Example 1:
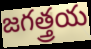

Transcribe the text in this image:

జగత్త్రయ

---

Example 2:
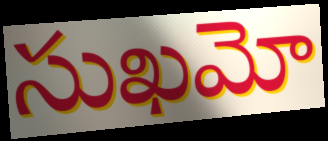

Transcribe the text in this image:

సుఖమో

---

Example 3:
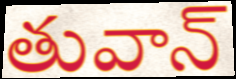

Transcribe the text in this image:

తువాన్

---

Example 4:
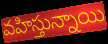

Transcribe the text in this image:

వహిస్తున్నాయి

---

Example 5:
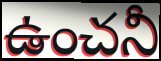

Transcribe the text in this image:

ఉంచనీ